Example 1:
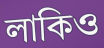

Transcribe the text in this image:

লাকিও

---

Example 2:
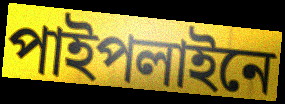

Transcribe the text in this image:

পাইপলাইনে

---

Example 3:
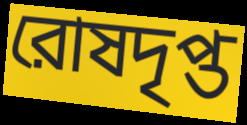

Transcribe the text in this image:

রোষদৃপ্ত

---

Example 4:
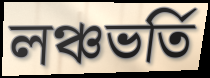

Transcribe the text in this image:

লঞ্চভর্তি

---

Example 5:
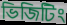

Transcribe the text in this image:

ভিজিটিং